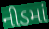
નીડમાં